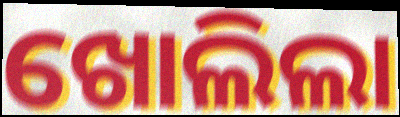
ଖୋଲିଲା